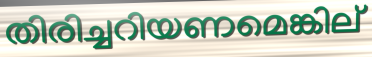
തിരിച്ചറിയണമെങ്കില്